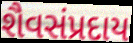
શૈવસંપ્રદાય